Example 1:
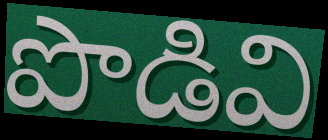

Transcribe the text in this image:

పొడివి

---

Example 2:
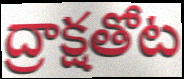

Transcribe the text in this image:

ద్రాక్షతోట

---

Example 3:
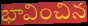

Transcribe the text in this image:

భావించిన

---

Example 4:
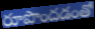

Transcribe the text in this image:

రూపొందడంతో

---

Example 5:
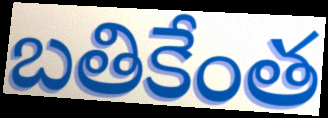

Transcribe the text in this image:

బతికేంత